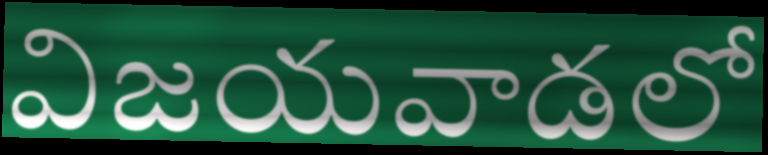
విజయవాడలో